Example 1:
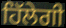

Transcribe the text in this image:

ਹਿੱਲੇਗੀ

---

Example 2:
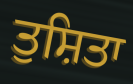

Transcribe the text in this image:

ਤੁਸ਼ਿਤਾ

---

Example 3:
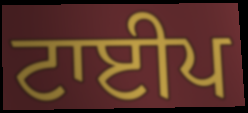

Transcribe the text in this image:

ਟਾਈਪ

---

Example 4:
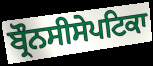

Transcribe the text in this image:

ਬ੍ਰੌਨਸੀਸੇਪਟਿਕਾ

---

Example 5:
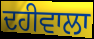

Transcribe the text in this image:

ਦਹੀਵਾਲਾ